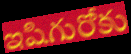
ఇషిగురోకు